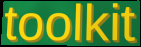
toolkit